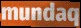
mundaq